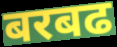
बरबढ